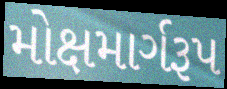
મોક્ષમાર્ગરૂપ